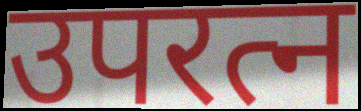
उपरत्न